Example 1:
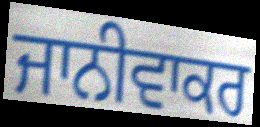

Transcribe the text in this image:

ਜਾਨੀਵਾਕਰ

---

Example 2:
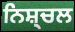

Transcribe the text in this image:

ਨਿਸ਼੍ਚਲ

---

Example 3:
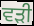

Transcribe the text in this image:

ਵੜੀ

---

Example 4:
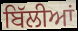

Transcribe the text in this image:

ਬਿੱਲੀਆਂ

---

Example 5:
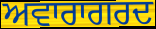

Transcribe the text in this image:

ਅਵਾਰਾਗਰਦ